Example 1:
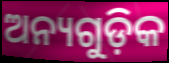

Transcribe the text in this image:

ଅନ୍ୟଗୁଡ଼ିକ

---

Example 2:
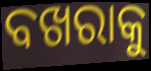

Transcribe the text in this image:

ବଖରାକୁ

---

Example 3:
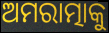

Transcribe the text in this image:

ଅମରାତ୍ମାକୁ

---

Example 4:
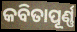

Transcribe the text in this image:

କବିତାପୂର୍ଣ୍ଣ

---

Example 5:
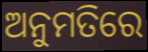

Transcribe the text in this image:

ଅନୁମତିରେ